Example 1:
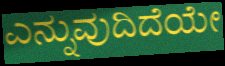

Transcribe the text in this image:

ಎನ್ನುವುದಿದೆಯೇ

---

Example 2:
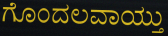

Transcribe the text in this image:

ಗೊಂದಲವಾಯ್ತು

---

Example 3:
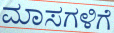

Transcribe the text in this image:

ಮಾಸಗಳಿಗೆ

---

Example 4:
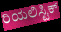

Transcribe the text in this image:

ರಿಯಲಿಸ್ಟಿಕ್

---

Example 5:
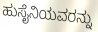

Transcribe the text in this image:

ಹುಸೈನಿಯವರನ್ನು